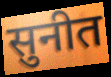
सुनीत